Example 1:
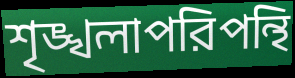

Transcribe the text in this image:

শৃঙ্খলাপরিপন্থি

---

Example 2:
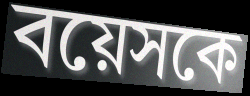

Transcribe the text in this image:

বয়েসকে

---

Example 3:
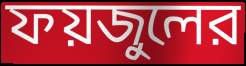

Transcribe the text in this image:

ফয়জুলের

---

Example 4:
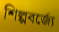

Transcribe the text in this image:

শিল্পবর্জ্যে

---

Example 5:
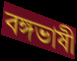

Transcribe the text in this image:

বঙ্গভাষী